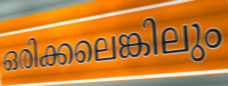
ഒരിക്കലെങ്കിലും